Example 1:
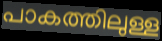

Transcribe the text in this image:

പാകത്തിലുള്ള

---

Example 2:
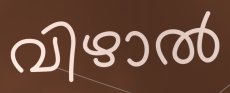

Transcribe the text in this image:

വിഴാൽ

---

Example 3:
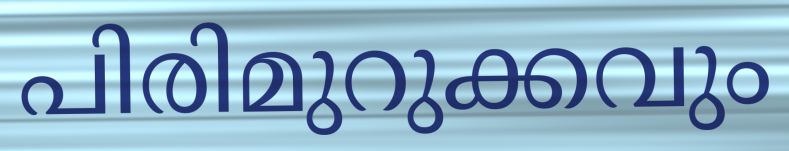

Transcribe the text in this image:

പിരിമുറുക്കവും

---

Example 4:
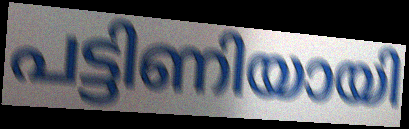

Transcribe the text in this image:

പട്ടിണിയായി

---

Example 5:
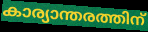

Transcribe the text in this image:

കാര്യാന്തരത്തിന്